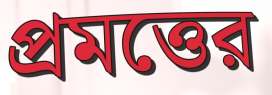
প্রমত্তের